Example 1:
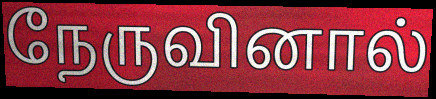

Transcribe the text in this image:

நேருவினால்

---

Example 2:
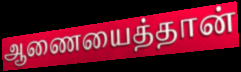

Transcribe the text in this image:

ஆணையைத்தான்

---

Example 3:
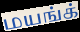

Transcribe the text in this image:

மயங்க்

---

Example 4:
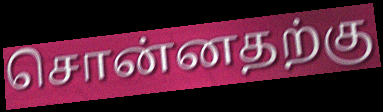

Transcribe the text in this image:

சொன்னதற்கு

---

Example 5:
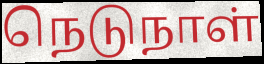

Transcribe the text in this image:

நெடுநாள்